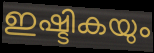
ഇഷ്ടികയും